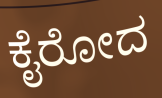
ಕೈರೋದ